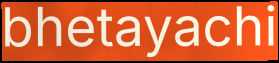
bhetayachi